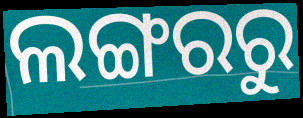
ଲଙ୍ଗରରୁ